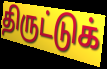
திருட்டுக்